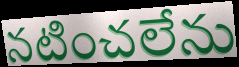
నటించలేను